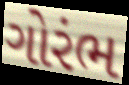
ગોરંભ